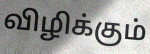
விழிக்கும்